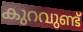
കുറവുണ്ട്